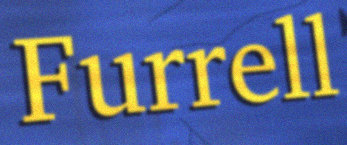
Furrell